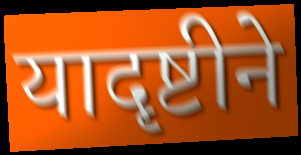
यादृष्टीने